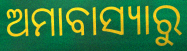
ଅମାବାସ୍ୟାରୁ